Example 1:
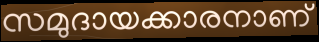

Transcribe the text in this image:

സമുദായക്കാരനാണ്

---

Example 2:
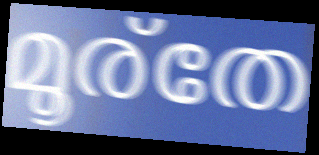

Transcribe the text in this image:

മൂര്തേ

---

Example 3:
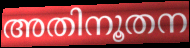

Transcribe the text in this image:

അതിനൂതന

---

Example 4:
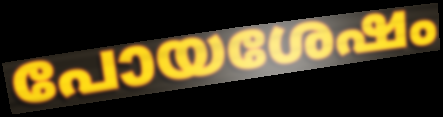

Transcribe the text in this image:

പോയശേഷം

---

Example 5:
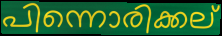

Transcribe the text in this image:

പിന്നൊരിക്കല്